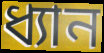
ধ্যান